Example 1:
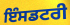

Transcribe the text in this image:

ਇੰਸਡਟਰੀ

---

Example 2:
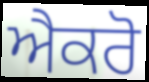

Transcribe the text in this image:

ਐਕਰੋ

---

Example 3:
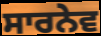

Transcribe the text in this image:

ਸਾਰਨੇਵ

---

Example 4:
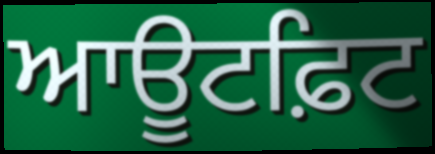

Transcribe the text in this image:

ਆਊਟਫ਼ਿਟ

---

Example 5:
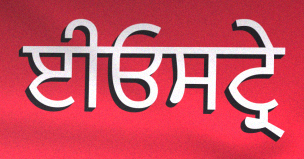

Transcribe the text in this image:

ਈਓਸਟ੍ਰੇ